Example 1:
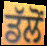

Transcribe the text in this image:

ਡੱਲੋਂ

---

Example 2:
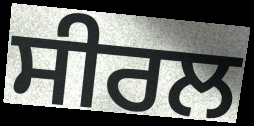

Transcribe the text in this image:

ਸੀਰਲ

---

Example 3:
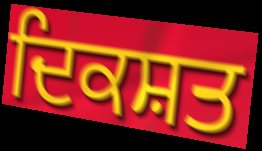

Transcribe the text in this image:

ਦਿਕਸ਼ਤ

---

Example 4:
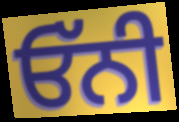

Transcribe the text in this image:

ਓੱਨੀ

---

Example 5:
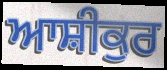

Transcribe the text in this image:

ਆਸ਼ੀਕੁਰ